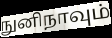
நுனிநாவும்